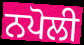
ਨਪੋਲੀ